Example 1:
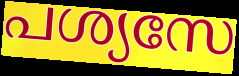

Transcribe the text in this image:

പശ്യസേ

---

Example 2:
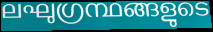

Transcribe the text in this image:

ലഘുഗ്രന്ഥങ്ങളുടെ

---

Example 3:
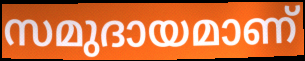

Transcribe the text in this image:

സമുദായമാണ്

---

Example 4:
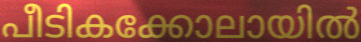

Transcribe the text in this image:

പീടികക്കോലായിൽ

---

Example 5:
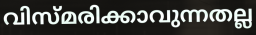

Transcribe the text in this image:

വിസ്മരിക്കാവുന്നതല്ല